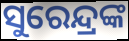
ସୁରେନ୍ଦ୍ରଙ୍କ